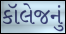
કૉલેજનું